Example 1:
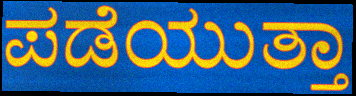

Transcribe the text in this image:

ಪಡೆಯುತ್ತಾ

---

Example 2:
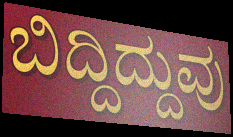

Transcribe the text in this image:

ಬಿದ್ದಿದ್ದುವು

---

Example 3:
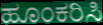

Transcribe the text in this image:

ಹೂಂಕರಿಸಿ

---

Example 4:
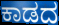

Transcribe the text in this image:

ಕಾಡದ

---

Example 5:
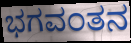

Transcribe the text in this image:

ಭಗವಂತನ